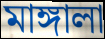
মাঙ্গালা